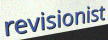
revisionist